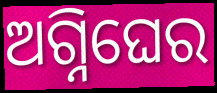
ଅଗ୍ନିଘେର